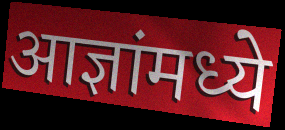
आज्ञांमध्ये